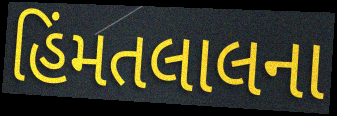
હિંમતલાલના